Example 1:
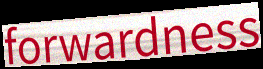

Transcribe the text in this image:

forwardness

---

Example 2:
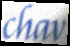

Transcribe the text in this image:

chav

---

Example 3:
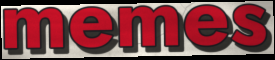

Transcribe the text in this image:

memes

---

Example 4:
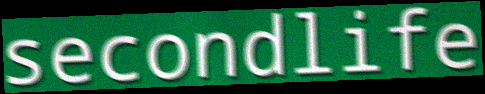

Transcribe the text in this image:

secondlife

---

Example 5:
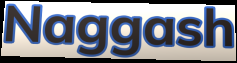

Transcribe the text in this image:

Naggash